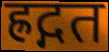
ह्रद्गत